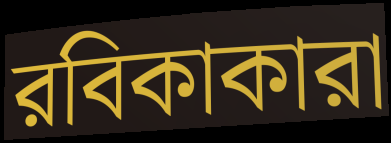
রবিকাকারা